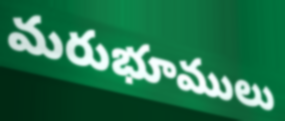
మరుభూములు